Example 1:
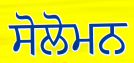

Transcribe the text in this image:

ਸੋਲੋਮਨ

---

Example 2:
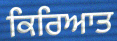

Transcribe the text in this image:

ਕਿਰਿਆਤ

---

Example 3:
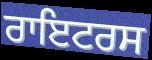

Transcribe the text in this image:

ਰਾਇਟਰਸ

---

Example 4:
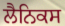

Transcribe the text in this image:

ਲੈਨਿਕਸ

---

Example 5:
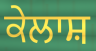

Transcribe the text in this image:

ਕੇਲਾਸ਼